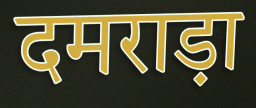
दमराड़ा